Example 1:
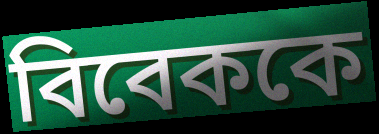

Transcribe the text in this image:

বিবেককে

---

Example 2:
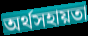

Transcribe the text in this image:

অর্থসহায়তা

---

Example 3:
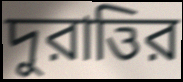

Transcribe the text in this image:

দুরাত্তির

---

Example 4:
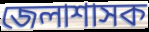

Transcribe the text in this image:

জেলাশাসক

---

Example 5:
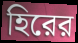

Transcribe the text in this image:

হিরের